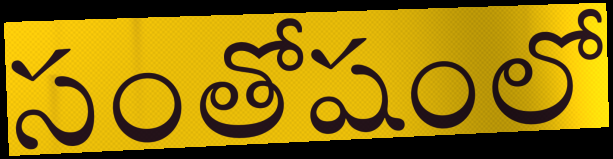
సంతోషంలో